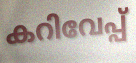
കറിവേപ്പ്